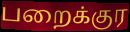
பறைக்குர